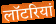
लॉटरियां